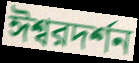
ঈশ্বরদর্শন